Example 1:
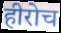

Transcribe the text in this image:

हीरोच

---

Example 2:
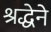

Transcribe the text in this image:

श्रद्धेने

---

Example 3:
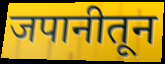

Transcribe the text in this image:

जपानीतून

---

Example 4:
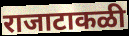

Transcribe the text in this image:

राजाटाकळी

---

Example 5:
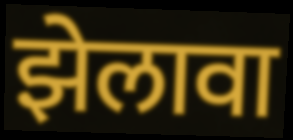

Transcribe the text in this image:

झेलावा